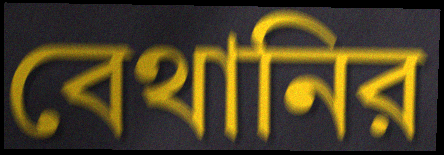
বেথানির